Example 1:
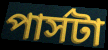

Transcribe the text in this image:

পার্সটা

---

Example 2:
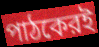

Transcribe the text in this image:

পাঠকেরই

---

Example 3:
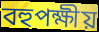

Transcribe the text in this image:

বহুপক্ষীয়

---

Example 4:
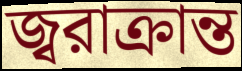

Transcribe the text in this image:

জ্বরাক্রান্ত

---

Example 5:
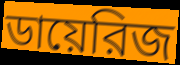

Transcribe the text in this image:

ডায়েরিজ